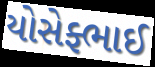
યોસેફ્ભાઈ